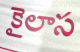
కైలాస